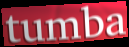
tumba